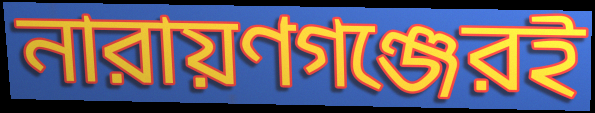
নারায়ণগঞ্জেরই